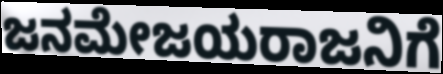
ಜನಮೇಜಯರಾಜನಿಗೆ